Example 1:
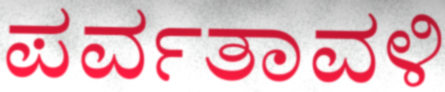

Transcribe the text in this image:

ಪರ್ವತಾವಳಿ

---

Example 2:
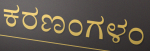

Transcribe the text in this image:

ಕರಣಂಗಳಂ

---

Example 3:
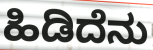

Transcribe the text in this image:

ಹಿಡಿದೆನು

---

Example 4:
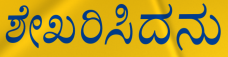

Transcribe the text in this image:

ಶೇಖರಿಸಿದನು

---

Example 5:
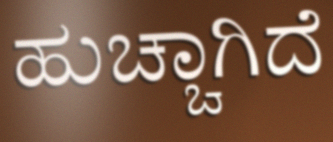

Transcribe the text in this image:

ಹುಚ್ಚಾಗಿದೆ